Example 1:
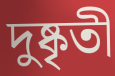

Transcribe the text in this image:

দুষ্কৃতী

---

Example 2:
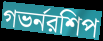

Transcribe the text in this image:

গভর্নরশিপ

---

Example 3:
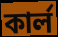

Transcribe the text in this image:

কার্ল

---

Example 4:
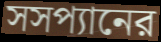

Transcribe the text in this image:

সসপ্যানের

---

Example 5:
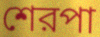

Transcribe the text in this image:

শেরপা